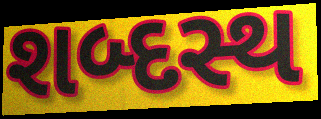
શબ્દસ્થ